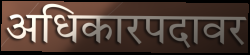
अधिकारपदावर